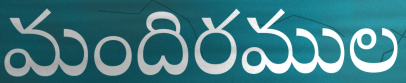
మందిరముల